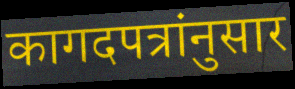
कागदपत्रांनुसार